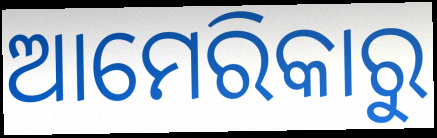
ଆମେରିକାରୁ